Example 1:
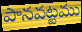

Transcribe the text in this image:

పానవట్టము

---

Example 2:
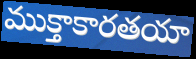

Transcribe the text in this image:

ముక్తాకారతయా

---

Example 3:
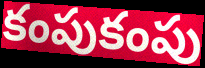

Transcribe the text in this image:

కంపుకంపు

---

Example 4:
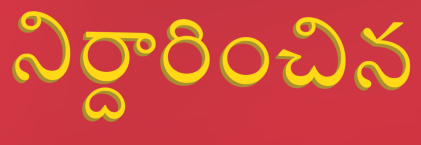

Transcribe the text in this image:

నిర్దారించిన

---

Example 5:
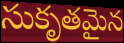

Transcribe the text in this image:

సుకృతమైన